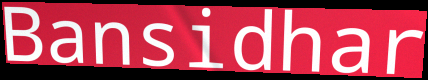
Bansidhar